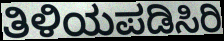
ತಿಳಿಯಪಡಿಸಿರಿ